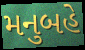
મનુબહે